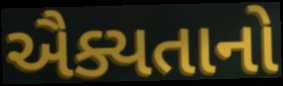
ઐક્યતાનો